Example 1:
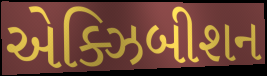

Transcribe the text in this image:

એક્ઝિબીશન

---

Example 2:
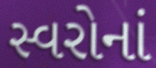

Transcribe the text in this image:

સ્વરોનાં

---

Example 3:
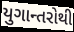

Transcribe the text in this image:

યુગાન્તરોથી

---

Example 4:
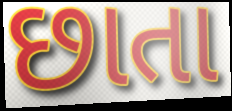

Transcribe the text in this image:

છાતા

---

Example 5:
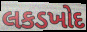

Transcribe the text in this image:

લકડખોદ